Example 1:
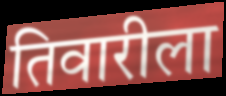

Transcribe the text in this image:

तिवारीला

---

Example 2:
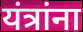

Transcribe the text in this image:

यंत्रांना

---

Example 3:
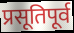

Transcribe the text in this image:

प्रसूतिपूर्व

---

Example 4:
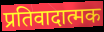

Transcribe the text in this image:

प्रतिवादात्मक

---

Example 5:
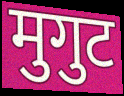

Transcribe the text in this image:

मुगुट